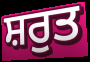
ਸ਼ਰੁਤ